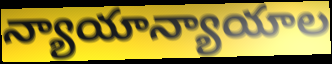
న్యాయాన్యాయాల